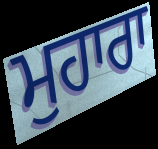
ਮੁਹਾਰਾ